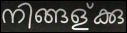
നിങ്ങള്ക്കു